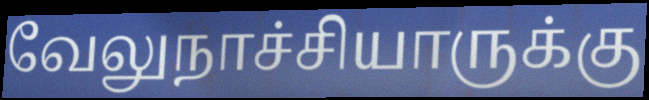
வேலுநாச்சியாருக்கு